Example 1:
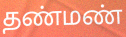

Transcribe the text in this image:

தண்மண்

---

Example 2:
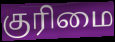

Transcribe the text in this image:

குரிமை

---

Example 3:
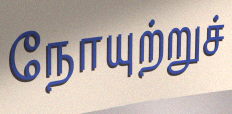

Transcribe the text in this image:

நோயுற்றுச்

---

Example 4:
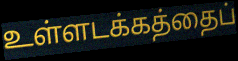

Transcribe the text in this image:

உள்ளடக்கத்தைப்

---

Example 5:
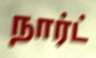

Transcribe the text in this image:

நார்ட்